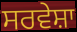
ਸਰਵੇਸ਼ਾ